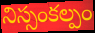
నిస్సంకల్పం